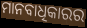
ମାନବାଧିକାରର